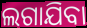
ଲଗାଯିବା